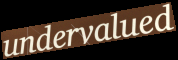
undervalued